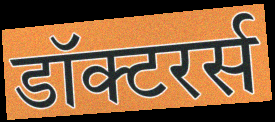
डॉक्टरर्स